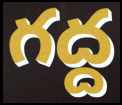
గద్ద